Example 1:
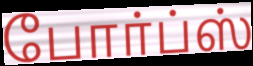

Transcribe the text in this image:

போர்ப்ஸ்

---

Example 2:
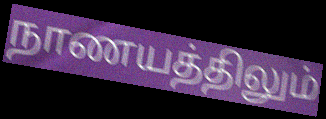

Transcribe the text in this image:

நாணயத்திலும்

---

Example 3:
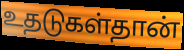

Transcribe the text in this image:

உதடுகள்தான்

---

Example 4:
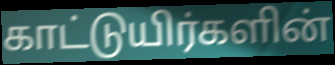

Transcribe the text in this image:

காட்டுயிர்களின்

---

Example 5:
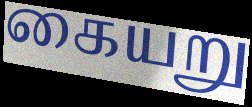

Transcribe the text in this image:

கையறு